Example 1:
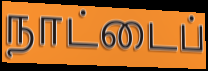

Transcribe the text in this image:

நாட்டைப்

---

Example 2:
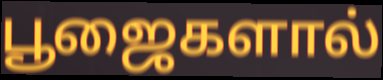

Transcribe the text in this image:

பூஜைகளால்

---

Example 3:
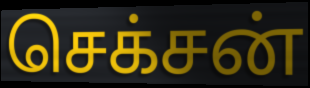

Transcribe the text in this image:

செக்சன்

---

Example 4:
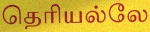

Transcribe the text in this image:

தெரியல்லே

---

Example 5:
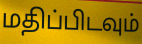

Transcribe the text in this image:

மதிப்பிடவும்